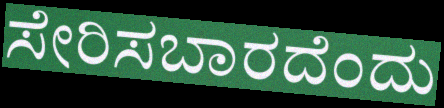
ಸೇರಿಸಬಾರದೆಂದು